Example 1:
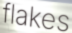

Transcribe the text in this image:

flakes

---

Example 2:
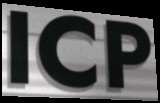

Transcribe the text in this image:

ICP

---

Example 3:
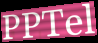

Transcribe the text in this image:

PPTel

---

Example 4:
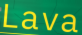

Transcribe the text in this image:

Lava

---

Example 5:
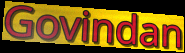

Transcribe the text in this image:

Govindan